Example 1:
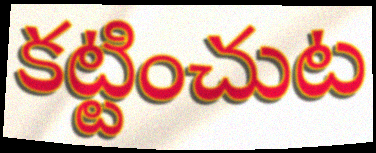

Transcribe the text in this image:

కట్టించుట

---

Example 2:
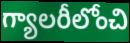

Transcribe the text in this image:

గ్యాలరీలోంచి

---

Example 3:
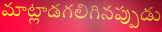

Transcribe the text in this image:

మాట్లాడగలిగినప్పుడు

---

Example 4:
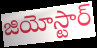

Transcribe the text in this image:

జియోస్టార్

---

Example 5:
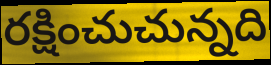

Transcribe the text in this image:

రక్షించుచున్నది